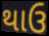
થાઉ